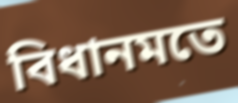
বিধানমতে